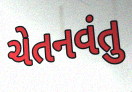
ચેતનવંતુ